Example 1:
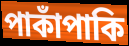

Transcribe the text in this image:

পাকাঁপাকি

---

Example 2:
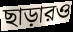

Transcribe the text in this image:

ছাড়ারও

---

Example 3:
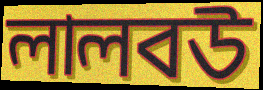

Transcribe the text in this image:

লালবউ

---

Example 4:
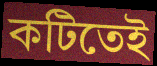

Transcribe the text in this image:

কটিতেই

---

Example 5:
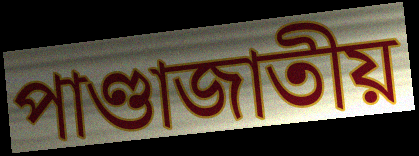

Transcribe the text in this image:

পাণ্ডাজাতীয়